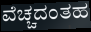
ವೆಚ್ಚದಂತಹ